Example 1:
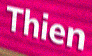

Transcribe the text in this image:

Thien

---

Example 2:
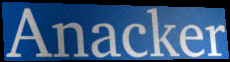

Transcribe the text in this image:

Anacker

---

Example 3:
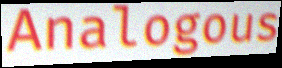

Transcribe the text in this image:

Analogous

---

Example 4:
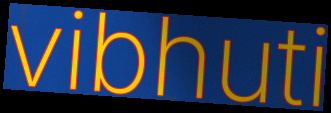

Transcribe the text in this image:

vibhuti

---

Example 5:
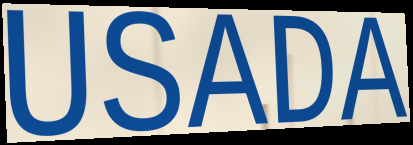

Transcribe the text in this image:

USADA